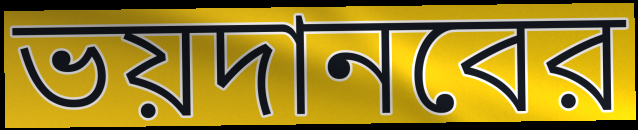
ভয়দানবের